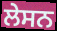
ਲੇਸਨ